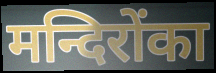
मन्दिरोंका